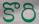
కొరి